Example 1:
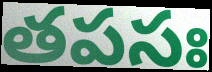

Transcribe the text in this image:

తపసః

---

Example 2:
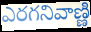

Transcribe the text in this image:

ఎరగనివాణ్ణి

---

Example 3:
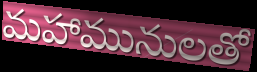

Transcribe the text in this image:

మహామునులతో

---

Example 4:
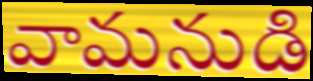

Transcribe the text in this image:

వామనుడి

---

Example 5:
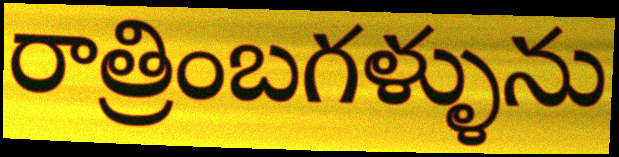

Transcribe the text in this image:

రాత్రింబగళ్ళును